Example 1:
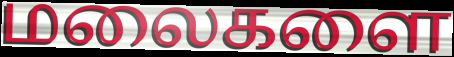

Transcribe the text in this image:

மலைகளை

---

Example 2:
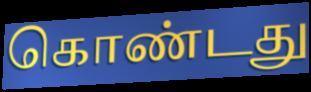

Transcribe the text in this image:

கொண்டது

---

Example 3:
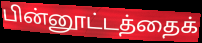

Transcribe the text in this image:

பின்னூட்டத்தைக்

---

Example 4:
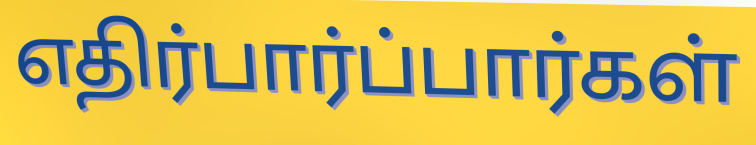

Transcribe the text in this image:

எதிர்பார்ப்பார்கள்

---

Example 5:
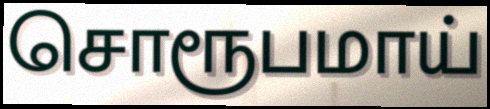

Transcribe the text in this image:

சொரூபமாய்